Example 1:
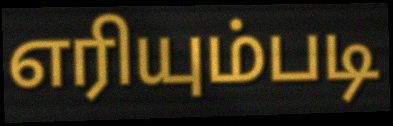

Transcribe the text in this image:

எரியும்படி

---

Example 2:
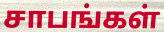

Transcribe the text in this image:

சாபங்கள்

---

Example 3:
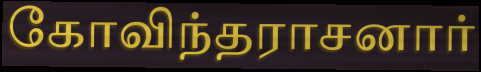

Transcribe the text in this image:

கோவிந்தராசனார்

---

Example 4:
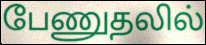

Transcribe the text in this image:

பேணுதலில்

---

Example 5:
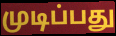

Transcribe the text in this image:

முடிப்பது